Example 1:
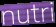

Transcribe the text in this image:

nutri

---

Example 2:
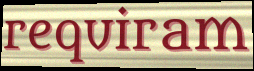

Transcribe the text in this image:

requiram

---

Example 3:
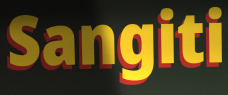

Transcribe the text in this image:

Sangiti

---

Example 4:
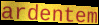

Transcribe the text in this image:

ardentem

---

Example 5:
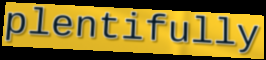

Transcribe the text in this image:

plentifully